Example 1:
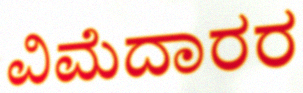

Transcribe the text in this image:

ವಿಮೆದಾರರ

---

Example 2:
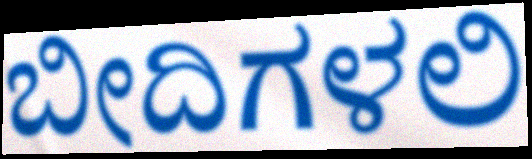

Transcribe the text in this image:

ಬೀದಿಗಳಲಿ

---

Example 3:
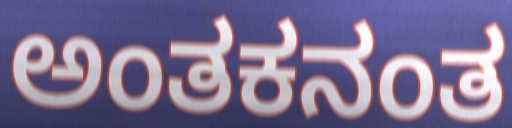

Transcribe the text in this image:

ಅಂತಕನಂತ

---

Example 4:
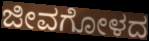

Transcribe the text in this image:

ಜೀವಗೋಳದ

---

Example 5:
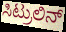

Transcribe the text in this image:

ಸಿಟ್ರುಲಿನ್